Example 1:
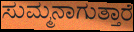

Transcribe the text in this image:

ಸುಮ್ಮನಾಗುತ್ತಾರೆ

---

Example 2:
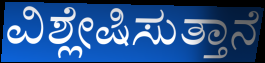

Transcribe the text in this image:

ವಿಶ್ಲೇಷಿಸುತ್ತಾನೆ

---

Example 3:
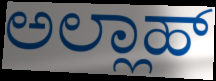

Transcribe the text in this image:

ಅಲ್ಲಾಹ್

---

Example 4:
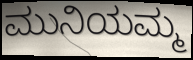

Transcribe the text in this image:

ಮುನಿಯಮ್ಮ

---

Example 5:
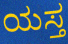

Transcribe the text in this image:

ಯಸ್ತ